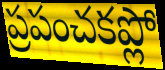
ప్రపంచకప్లో